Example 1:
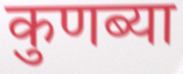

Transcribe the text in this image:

कुणब्या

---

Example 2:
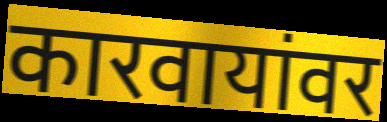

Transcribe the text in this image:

कारवायांवर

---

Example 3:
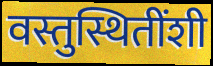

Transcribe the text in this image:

वस्तुस्थितींशी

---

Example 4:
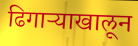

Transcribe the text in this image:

ढिगाऱ्याखालून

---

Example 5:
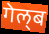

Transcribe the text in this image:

गेल्ब